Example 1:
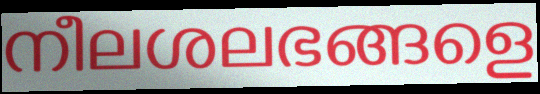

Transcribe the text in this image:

നീലശലഭങ്ങളെ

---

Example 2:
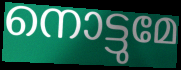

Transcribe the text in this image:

നൊട്ടുമേ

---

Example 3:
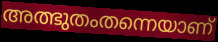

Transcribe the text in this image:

അത്ഭുതംതന്നെയാണ്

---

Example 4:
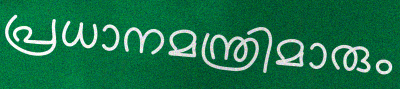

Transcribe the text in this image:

പ്രധാനമന്ത്രിമാരും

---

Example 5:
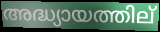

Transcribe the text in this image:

അദ്ധ്യായത്തില്